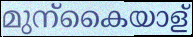
മുന്കൈയാള്